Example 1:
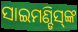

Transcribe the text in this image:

ସାଇମଣ୍ଡିସ୍‍ଙ୍କ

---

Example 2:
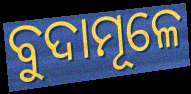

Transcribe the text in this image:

ବୁଦାମୂଳେ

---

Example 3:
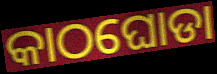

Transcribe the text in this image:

କାଠଘୋଡା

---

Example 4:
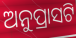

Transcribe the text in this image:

ଅନୁପ୍ରାସଟି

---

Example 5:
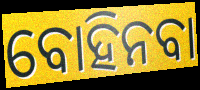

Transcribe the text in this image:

ବୋହିନବା